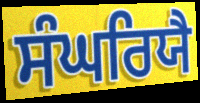
ਸੰਘਰਿਯੈ